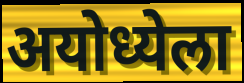
अयोध्येला